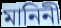
মানিনী